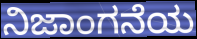
ನಿಜಾಂಗನೆಯ